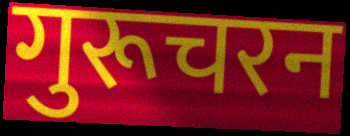
गुरूचरन